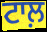
ਟਾਲ਼